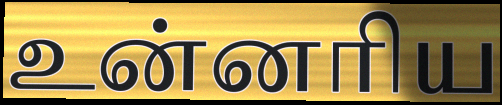
உன்னரிய